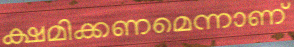
ക്ഷമിക്കണമെന്നാണ്